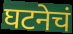
घटनेचं